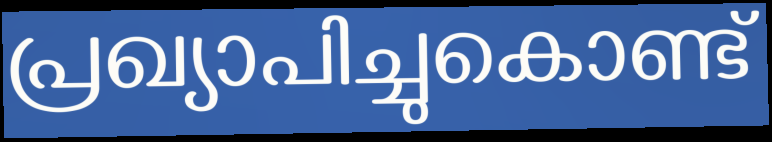
പ്രഖ്യാപിച്ചുകൊണ്ട്